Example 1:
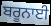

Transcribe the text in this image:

ਬਰੂਨਾਈ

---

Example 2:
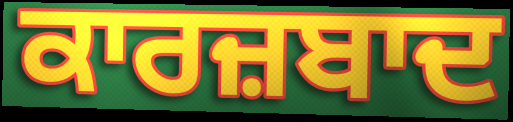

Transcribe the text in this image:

ਕਾਰਜ਼ਬਾਦ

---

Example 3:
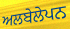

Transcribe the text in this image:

ਅਲਬੇਲੇਪਨ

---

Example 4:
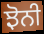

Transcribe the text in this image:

ਝੋਨੀ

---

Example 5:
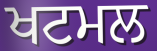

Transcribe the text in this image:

ਖਟਮਲ